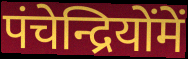
पंचेन्द्रियोंमें